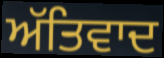
ਅੱਤਿਵਾਦ